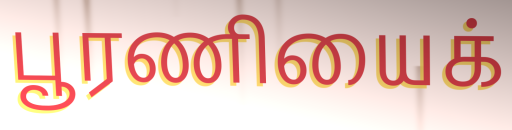
பூரணியைக்